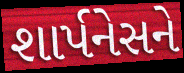
શાર્પનેસને